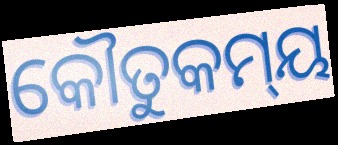
କୌତୁକମ୍‍ୟ